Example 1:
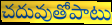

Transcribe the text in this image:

చదువుతోపాటు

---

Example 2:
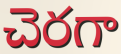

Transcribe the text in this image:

చెరగా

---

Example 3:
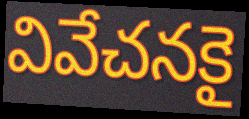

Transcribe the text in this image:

వివేచనకై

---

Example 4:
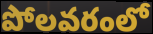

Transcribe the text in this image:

పోలవరంలో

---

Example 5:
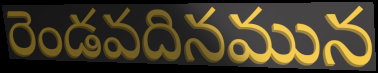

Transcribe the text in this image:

రెండవదినమున